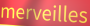
merveilles